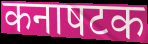
कनाषटक